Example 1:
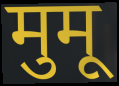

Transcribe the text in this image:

मुमू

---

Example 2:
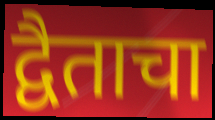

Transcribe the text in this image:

द्वैताचा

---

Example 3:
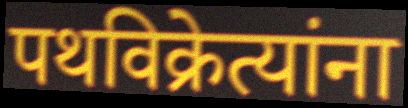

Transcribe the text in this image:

पथविक्रेत्यांना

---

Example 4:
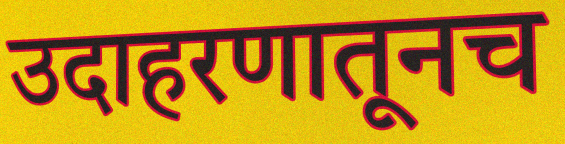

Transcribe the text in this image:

उदाहरणातूनच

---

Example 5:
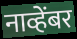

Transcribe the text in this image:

नाव्हेंबर